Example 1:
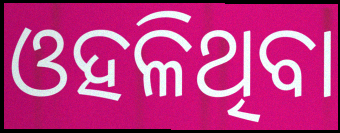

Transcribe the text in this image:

ଓହଳିଥିବା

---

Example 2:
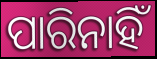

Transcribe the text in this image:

ପାରିନାହିଁ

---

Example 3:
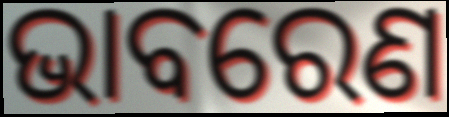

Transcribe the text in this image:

ଭାବରେଣ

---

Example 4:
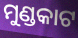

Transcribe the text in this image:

ମୁଣ୍ଡକାଟ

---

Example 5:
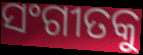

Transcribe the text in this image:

ସଂଗୀତକୁ